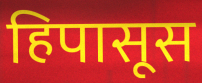
हिपासूस